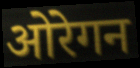
ओरेगन